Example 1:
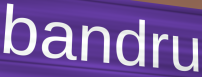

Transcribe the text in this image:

bandru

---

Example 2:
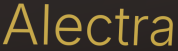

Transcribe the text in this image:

Alectra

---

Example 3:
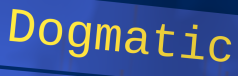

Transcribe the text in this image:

Dogmatic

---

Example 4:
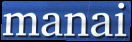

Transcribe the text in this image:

manai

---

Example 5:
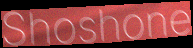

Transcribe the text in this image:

Shoshone